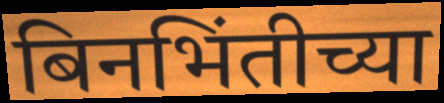
बिनभिंतीच्या